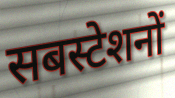
सबस्टेशनों